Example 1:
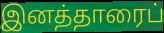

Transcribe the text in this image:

இனத்தாரைப்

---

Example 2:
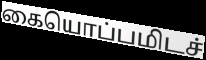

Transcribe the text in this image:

கையொப்பமிடச்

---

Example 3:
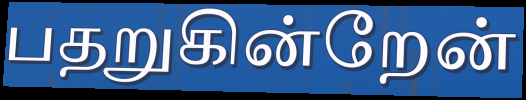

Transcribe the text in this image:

பதறுகின்றேன்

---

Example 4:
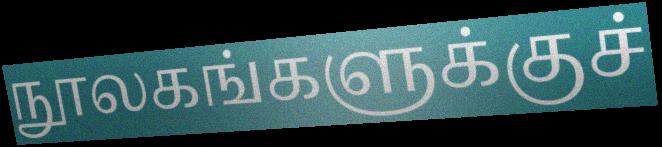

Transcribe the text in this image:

நூலகங்களுக்குச்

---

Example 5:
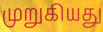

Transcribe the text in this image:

முறுகியது